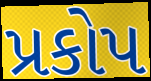
પ્રકોપ